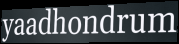
yaadhondrum